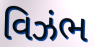
વિઝંભ